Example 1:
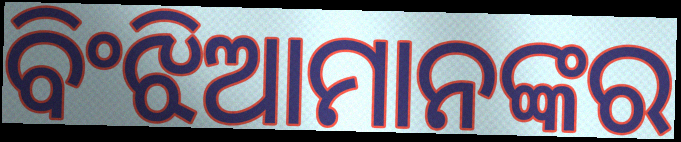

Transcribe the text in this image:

ବିଂଝିଆମାନଙ୍କର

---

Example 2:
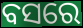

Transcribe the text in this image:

ବସରେ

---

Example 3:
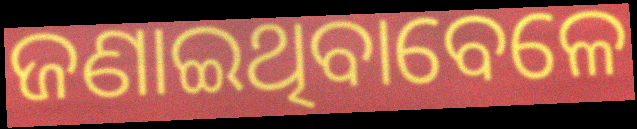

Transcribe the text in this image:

ଜଣାଇଥିବାବେଳେ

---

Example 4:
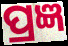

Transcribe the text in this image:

ପ୍ରଜ୍ଞ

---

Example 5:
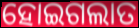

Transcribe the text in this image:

ହୋଇଗଲାତ